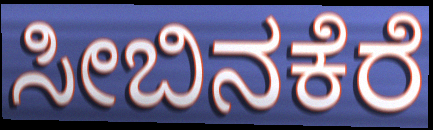
ಸೀಬಿನಕೆರೆ